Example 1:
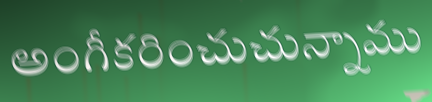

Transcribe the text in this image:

అంగీకరించుచున్నాము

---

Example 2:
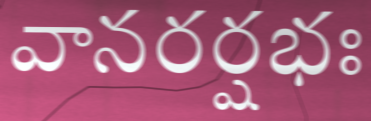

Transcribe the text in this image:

వానరర్షభః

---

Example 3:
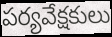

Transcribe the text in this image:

పర్యవేక్షకులు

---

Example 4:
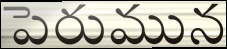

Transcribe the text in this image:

పెరుమున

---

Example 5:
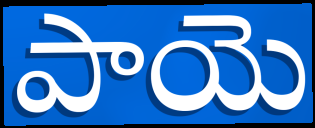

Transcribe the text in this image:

పాయె